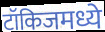
टॉकिजमध्ये